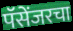
पॅसेंजरचा